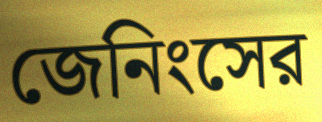
জেনিংসের